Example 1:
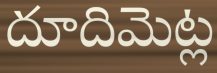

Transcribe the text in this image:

దూదిమెట్ల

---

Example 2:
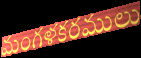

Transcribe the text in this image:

మంగళకరములు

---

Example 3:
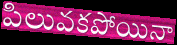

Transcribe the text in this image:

పిలువకపోయినా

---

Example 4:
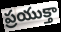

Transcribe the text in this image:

ప్రయుక్తా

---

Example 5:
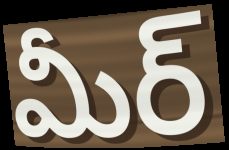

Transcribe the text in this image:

మీర్